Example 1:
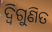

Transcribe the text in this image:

ଦ୍ୱିଗୁଣିତ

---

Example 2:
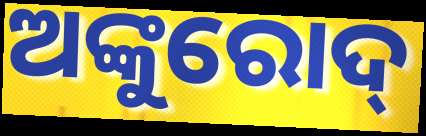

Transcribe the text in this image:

ଅଙ୍କୁରୋଦ୍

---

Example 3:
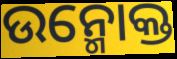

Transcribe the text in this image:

ଉନ୍ମୋକ୍ତ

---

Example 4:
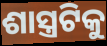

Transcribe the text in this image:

ଶାସ୍ତ୍ରଟିକୁ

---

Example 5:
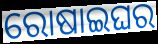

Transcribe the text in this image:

ରୋଷାଇଘର